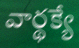
వార్థక్యే